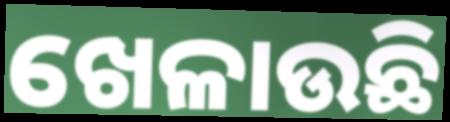
ଖେଳାଉଛି